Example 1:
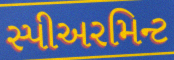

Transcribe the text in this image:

સ્પીઅરમિન્ટ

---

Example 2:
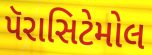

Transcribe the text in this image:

પૅરાસિટેમોલ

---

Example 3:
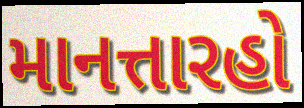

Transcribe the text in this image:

માનત્તારહો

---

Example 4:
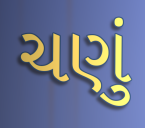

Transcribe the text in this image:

ચણું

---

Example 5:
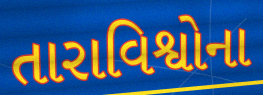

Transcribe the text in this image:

તારાવિશ્વોના